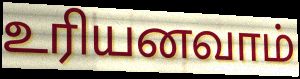
உரியனவாம்